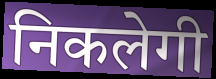
निकलेगी